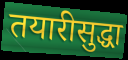
तयारीसुद्धा